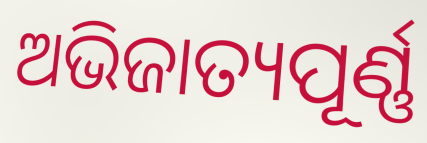
ଅଭିଜାତ୍ୟପୂର୍ଣ୍ଣ